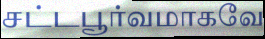
சட்டபூர்வமாகவே